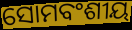
ସୋମବଂଶୀୟ